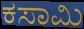
ಕಸಾಮಿ